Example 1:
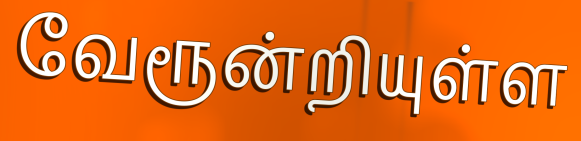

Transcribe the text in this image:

வேரூன்றியுள்ள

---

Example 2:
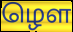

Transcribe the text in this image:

ழௌ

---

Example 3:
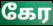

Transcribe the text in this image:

கேர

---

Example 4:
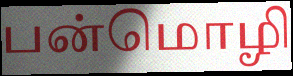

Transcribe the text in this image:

பன்மொழி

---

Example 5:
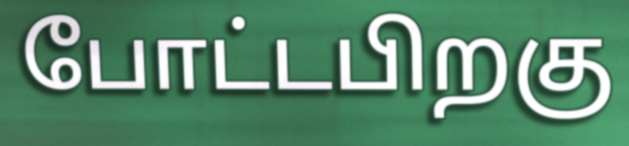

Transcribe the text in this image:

போட்டபிறகு